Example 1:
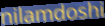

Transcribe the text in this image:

nilamdoshi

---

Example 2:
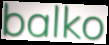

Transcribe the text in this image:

balko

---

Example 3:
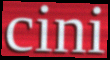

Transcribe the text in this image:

cini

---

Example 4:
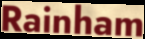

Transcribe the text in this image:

Rainham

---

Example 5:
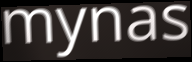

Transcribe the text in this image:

mynas